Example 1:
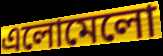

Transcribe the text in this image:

এলোমেলো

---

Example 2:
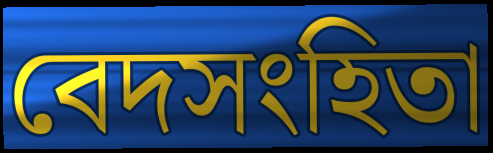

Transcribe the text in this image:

বেদসংহিতা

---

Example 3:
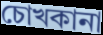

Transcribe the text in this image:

চোখকানা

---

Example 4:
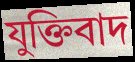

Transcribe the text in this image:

যুক্তিবাদ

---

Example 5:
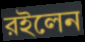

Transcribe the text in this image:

রইলেন